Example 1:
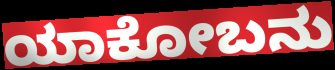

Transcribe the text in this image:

ಯಾಕೋಬನು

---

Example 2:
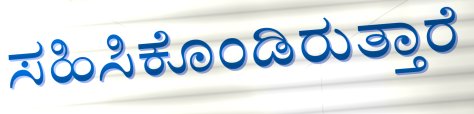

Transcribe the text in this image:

ಸಹಿಸಿಕೊಂಡಿರುತ್ತಾರೆ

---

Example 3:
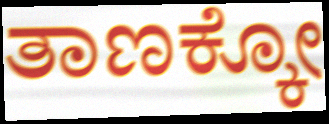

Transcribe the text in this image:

ತಾಣಕ್ಕೋ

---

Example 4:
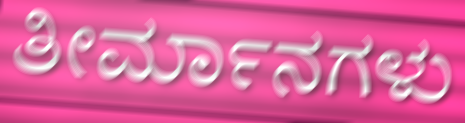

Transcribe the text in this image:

ತೀರ್ಮಾನಗಳು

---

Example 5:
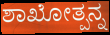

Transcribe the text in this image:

ಶಾಖೋತ್ಪನ್ನ